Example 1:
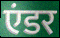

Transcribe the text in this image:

एंडर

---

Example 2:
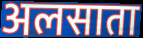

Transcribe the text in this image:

अलसाता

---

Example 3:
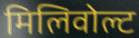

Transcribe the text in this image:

मिलिवोल्ट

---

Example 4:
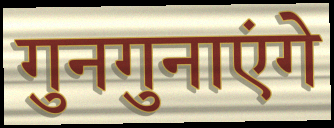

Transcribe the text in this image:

गुनगुनाएंगे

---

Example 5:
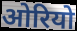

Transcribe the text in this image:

ओरियो